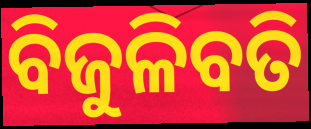
ବିଜୁଳିବତି